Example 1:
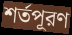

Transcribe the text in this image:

শর্তপূরণ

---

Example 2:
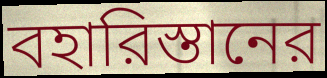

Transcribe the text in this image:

বহারিস্তানের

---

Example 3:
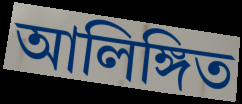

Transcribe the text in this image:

আলিঙ্গিত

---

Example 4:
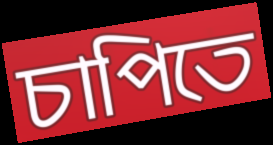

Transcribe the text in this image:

চাপিতে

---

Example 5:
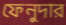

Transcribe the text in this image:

ফেনুদার